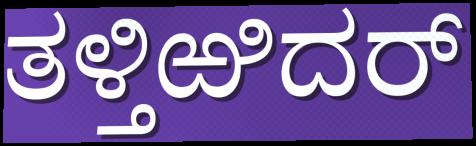
ತಳ್ತಿಱಿದರ್